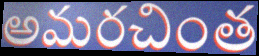
అమరచింత